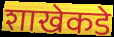
शाखेकडे